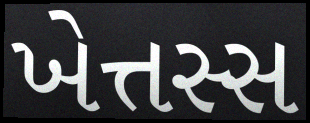
ખેત્તસ્સ